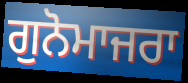
ਗੁਨੋਮਾਜਰਾ